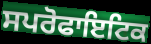
ਸਪਰੋਫਾਇਟਿਕ